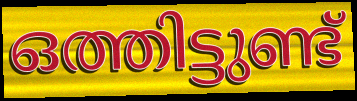
ഒത്തിട്ടുണ്ട്